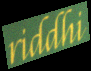
riddhi